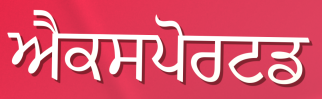
ਐਕਸਪੋਰਟਡ